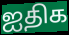
ஐதிக